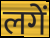
लगें